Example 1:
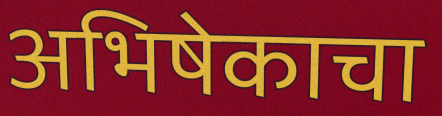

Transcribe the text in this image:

अभिषेकाचा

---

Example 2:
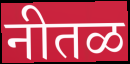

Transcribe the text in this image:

नीतळ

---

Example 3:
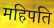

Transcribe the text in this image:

महिपति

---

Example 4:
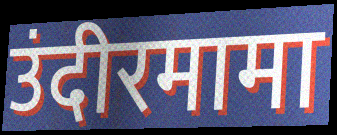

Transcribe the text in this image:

उंदीरमामा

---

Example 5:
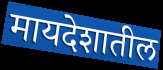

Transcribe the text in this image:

मायदेशातील